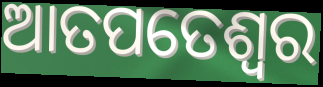
ଆତପତେଶ୍ୱର